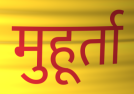
मुहूर्ता